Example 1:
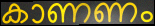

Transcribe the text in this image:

കാണണം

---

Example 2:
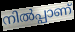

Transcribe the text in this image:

നിൽപ്പാണ്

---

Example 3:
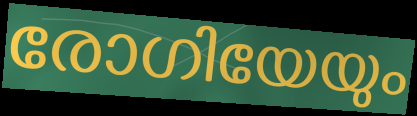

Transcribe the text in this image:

രോഗിയേയും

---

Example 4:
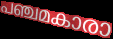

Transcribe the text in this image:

പഞ്ചമകാരാ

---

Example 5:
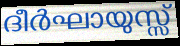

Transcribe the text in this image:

ദീർഘായുസ്സ്